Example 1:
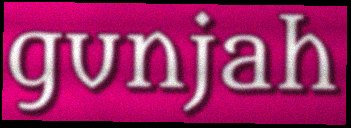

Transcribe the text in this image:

gunjah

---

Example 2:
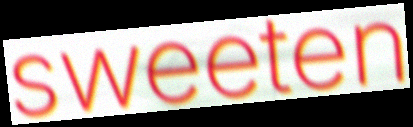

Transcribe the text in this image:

sweeten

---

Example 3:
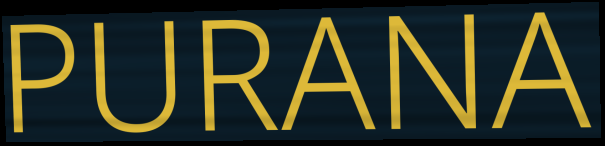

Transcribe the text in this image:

PURANA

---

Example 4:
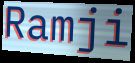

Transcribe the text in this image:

Ramji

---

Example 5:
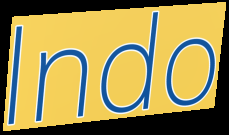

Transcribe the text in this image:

Indo